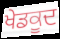
ਖੇਡਕੂਦ